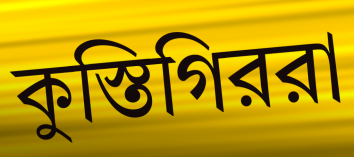
কুস্তিগিররা